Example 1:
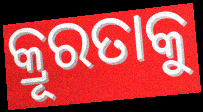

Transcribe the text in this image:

କ୍ରୂରତାକୁ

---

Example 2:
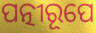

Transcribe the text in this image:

ପତ୍ନୀରୂପେ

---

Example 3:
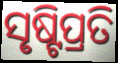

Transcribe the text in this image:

ସୃଷ୍ଟିପ୍ରତି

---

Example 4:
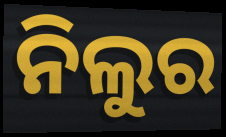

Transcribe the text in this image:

ନିଲୁର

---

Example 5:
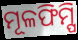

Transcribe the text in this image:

ମୂଳଫିମ୍ପି